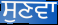
ਸੁਣਵਾ